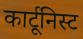
कार्टूनिस्ट